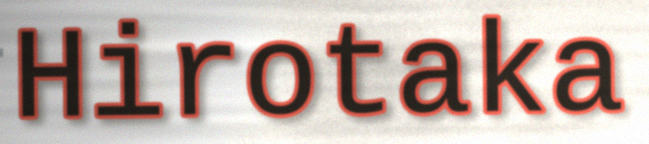
Hirotaka